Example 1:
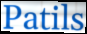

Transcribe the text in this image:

Patils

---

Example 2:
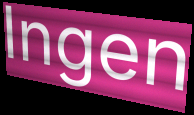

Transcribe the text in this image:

Ingen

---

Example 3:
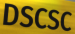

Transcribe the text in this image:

DSCSC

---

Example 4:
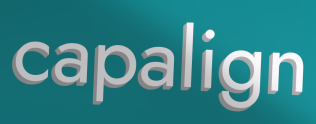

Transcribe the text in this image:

capalign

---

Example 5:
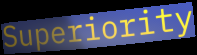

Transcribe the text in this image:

Superiority